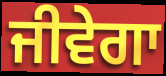
ਜੀਵੇਗਾ